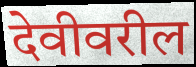
देवीवरील